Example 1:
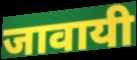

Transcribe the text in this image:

जावायी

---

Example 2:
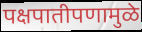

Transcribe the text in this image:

पक्षपातीपणामुळे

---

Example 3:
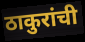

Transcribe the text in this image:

ठाकुरांची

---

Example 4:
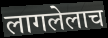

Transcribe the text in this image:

लागलेलाच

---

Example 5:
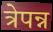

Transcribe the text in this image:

त्रेपन्न